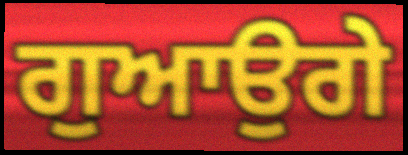
ਗੁਆਉਗੇ